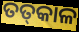
ତତ୍‌କାଳ